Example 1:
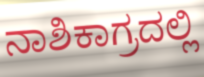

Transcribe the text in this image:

ನಾಶಿಕಾಗ್ರದಲ್ಲಿ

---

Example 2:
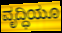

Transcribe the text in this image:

ವೃದ್ಧಿಯೂ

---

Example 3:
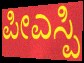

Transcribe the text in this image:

ಪೀಎಸ್ಪಿ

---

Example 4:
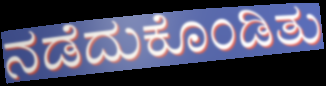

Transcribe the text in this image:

ನಡೆದುಕೊಂಡಿತು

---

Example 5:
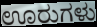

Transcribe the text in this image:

ಊರುಗಳು